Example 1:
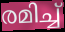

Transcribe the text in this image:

രമിച്ച്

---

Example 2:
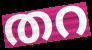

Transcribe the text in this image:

തറ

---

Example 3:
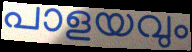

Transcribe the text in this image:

പാളയവും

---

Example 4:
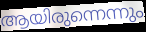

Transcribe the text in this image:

ആയിരുന്നെന്നും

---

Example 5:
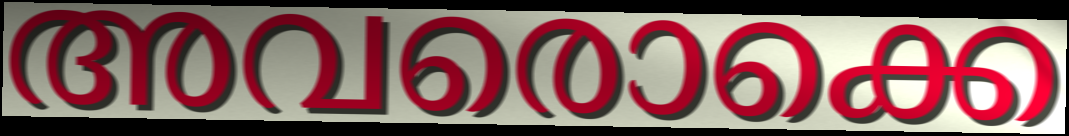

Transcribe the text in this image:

അവരൊക്കെ